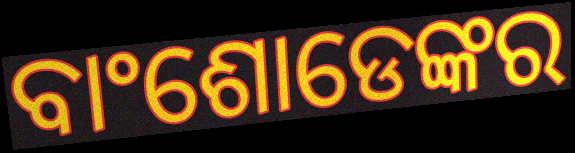
ବାଂଶୋଡେଙ୍କର